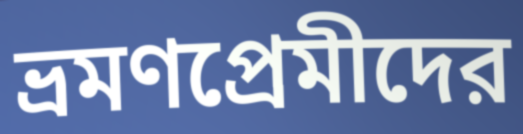
ভ্রমণপ্রেমীদের